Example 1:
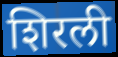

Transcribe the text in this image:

शिरली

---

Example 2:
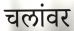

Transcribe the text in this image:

चलांवर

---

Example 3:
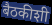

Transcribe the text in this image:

बैठकीशी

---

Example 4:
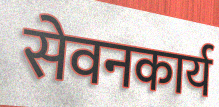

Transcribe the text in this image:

सेवनकार्य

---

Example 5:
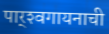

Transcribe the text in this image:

पार्श्वगायनाची